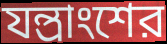
যন্ত্রাংশের